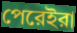
পেরেইরা